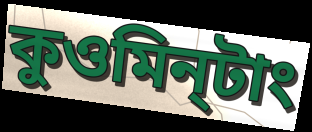
কুওমিন্‌টাং